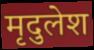
मृदुलेश